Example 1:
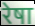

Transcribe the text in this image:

रेषा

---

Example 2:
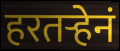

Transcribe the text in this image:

हरतर्‍हेनं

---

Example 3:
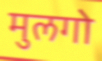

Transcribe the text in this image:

मुलगो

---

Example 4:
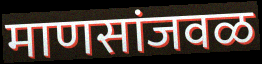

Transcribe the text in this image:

माणसांजवळ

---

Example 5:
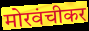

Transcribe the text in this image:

मोरवंचीकर